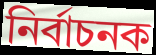
নিৰ্বাচনক